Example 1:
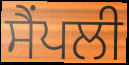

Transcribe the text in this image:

ਸੈਂਪਲੀ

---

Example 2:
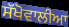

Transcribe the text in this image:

ਸੱਖੋਵਾਲੀਆ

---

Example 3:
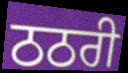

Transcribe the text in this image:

ਠਠਰੀ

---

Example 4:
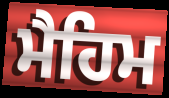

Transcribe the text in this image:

ਮੈਹਿਮ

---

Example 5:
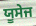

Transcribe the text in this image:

ਯੂਸੇਜ